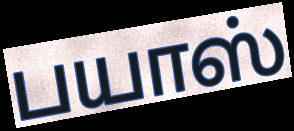
பயாஸ்